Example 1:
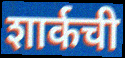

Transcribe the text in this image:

शार्कची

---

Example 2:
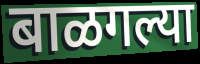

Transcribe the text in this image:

बाळगल्या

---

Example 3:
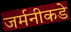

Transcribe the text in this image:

जर्मनीकडे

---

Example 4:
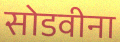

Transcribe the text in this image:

सोडवीना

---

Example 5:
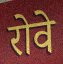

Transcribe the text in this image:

रोवे